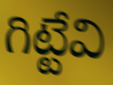
గిట్టేవి